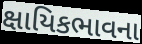
ક્ષાયિકભાવના